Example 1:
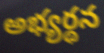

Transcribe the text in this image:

అభ్యర్థన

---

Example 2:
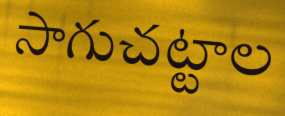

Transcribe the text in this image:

సాగుచట్టాల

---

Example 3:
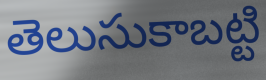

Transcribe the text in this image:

తెలుసుకాబట్టి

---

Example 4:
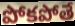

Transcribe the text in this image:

పోకపోతే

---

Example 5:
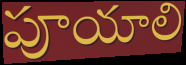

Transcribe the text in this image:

పూయాలి